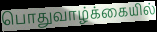
பொதுவாழ்க்கையில்